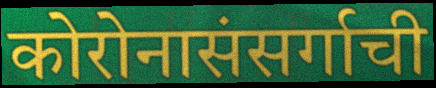
कोरोनासंसर्गाची